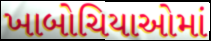
ખાબોચિયાઓમાં